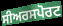
ਸੀਅਰਸਪੋਰਟ